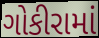
ગોકીરામાં